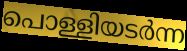
പൊള്ളിയടർന്ന